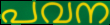
പവന